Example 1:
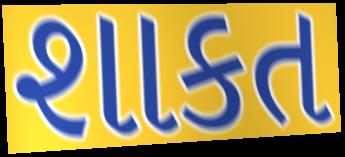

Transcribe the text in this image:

શાકત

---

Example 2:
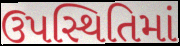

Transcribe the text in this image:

ઉપસ્થિતિમાં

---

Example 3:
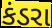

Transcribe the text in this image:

કંડરા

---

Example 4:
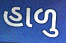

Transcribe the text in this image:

હાળુ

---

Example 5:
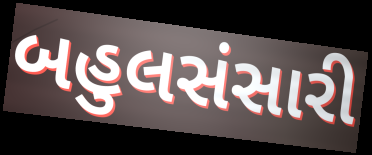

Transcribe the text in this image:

બહુલસંસારી